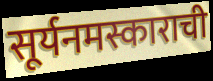
सूर्यनमस्काराची